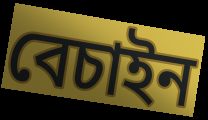
বেচাইন